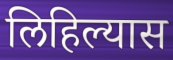
लिहिल्यास